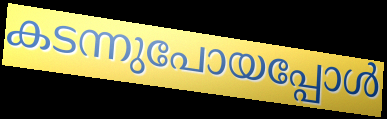
കടന്നുപോയപ്പോൾ